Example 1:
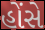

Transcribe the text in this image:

હોંસે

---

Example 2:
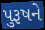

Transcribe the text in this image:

પુરૂષને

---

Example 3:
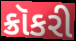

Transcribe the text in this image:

ક્રૉકરી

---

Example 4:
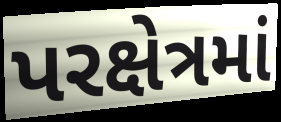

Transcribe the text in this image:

પરક્ષેત્રમાં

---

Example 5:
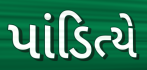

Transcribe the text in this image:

પાંડિત્યે